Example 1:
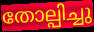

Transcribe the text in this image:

തോല്പിച്ചു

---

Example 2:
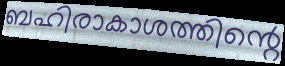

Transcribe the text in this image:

ബഹിരാകാശത്തിന്റെ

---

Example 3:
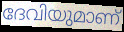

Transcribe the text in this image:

ദേവിയുമാണ്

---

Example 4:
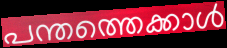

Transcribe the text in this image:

പന്തത്തെക്കാൾ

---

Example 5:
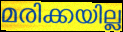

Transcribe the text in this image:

മരിക്കയില്ല